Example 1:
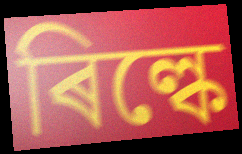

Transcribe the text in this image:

ৰিল্কে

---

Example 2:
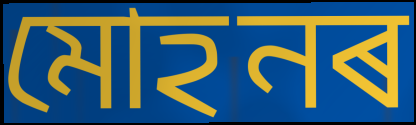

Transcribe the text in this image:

মোহনৰ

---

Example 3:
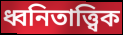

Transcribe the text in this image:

ধ্বনিতাত্ত্বিক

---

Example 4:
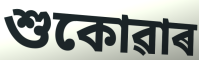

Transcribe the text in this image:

শুকোৱাৰ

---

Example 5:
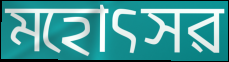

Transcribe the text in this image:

মহোৎসৱ